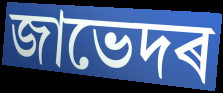
জাভেদৰ